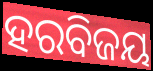
ହରବିଜୟ